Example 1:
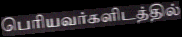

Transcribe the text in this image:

பெரியவர்களிடத்தில்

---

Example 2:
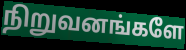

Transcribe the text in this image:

நிறுவனங்களே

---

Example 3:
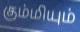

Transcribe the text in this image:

கும்மியும்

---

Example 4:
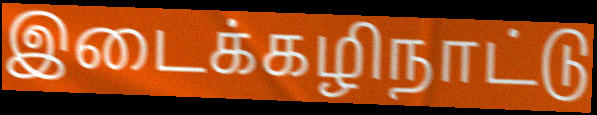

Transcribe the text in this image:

இடைக்கழிநாட்டு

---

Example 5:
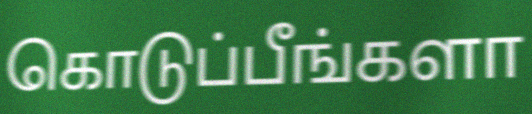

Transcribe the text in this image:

கொடுப்பீங்களா